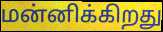
மன்னிக்கிறது